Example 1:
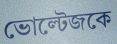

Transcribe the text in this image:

ভোল্টেজকে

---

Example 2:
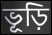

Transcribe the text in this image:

ভূড়ি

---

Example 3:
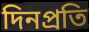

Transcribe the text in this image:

দিনপ্রতি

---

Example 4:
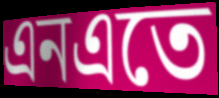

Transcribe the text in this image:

এনএতে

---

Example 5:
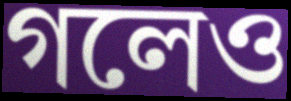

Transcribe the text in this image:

গলেও